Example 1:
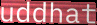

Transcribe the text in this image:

uddhat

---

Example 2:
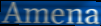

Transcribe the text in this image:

Amena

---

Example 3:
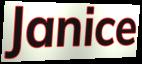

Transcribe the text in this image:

Janice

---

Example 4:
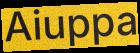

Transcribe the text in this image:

Aiuppa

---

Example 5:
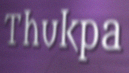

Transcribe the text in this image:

Thukpa